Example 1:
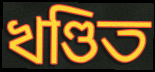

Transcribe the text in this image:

খণ্ডিত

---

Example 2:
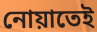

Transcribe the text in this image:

নোয়াতেই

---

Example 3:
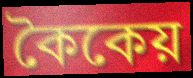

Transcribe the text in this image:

কৈকেয়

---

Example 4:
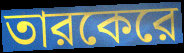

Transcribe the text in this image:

তারকেরে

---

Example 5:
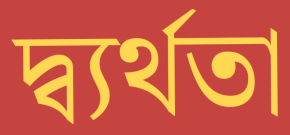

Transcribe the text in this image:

দ্ব্যর্থতা